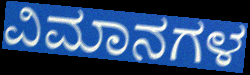
ವಿಮಾನಗಳ